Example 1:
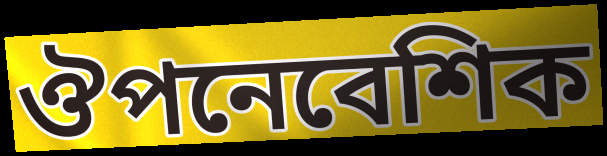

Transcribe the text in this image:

ঔপনেবেশিক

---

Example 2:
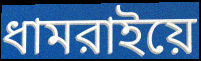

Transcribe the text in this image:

ধামরাইয়ে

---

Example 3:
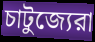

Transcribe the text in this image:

চাটুজ্যেরা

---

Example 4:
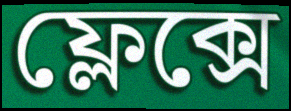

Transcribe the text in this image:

ফ্লেক্সে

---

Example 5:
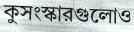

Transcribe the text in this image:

কুসংস্কারগুলোও